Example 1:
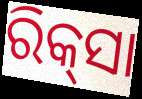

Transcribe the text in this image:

ରିକ୍‌ସା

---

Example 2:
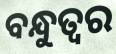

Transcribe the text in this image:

ବନ୍ଧୁତ୍ବର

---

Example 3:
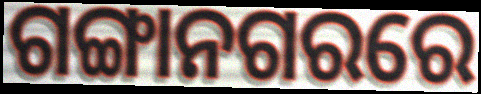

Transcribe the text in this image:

ଗଙ୍ଗାନଗରରେ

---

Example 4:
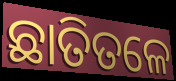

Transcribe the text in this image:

ଛାତିତଳେ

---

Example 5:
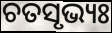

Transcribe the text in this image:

ଚତସୃଭ୍ୟଃ